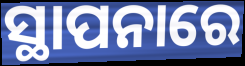
ସ୍ଥାପନାରେ